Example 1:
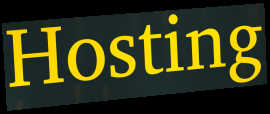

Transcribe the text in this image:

Hosting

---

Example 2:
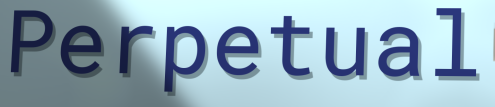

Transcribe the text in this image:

Perpetual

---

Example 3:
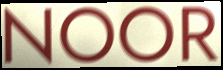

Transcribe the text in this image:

NOOR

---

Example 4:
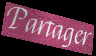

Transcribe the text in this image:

Partager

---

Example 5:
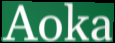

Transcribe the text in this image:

Aoka